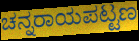
ಚನ್ನರಾಯಪಟ್ಟಣ